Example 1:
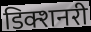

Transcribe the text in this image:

डिक्शनरी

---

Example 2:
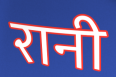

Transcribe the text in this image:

रानी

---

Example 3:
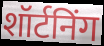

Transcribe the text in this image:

शॉर्टनिंग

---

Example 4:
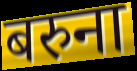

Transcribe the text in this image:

बरुना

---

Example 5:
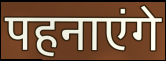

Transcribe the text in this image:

पहनाएंगे